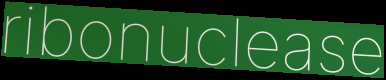
ribonuclease